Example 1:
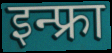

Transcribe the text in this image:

इन्फ्रा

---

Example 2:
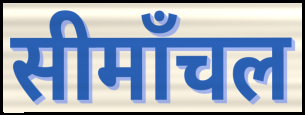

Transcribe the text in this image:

सीमाँचल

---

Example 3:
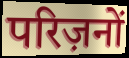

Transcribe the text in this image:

परिज़नों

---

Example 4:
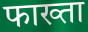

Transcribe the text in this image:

फाख्ता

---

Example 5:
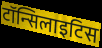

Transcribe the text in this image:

टॉन्सिलाइटिस